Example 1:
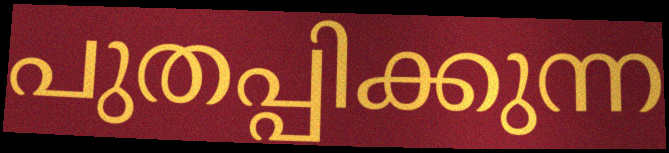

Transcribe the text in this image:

പുതപ്പിക്കുന്ന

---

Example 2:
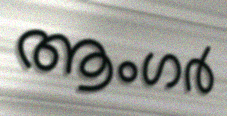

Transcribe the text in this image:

ആംഗർ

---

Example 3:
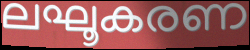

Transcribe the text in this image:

ലഘൂകരണ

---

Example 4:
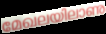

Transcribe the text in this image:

മേഖലയിലാണു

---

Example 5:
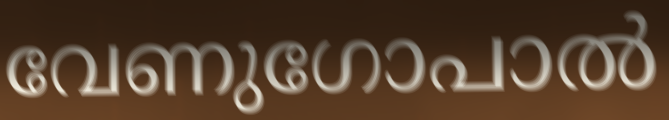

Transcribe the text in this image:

വേണുഗോപാൽ